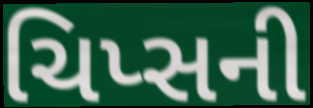
ચિપ્સની